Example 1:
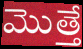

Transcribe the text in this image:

మొత్తే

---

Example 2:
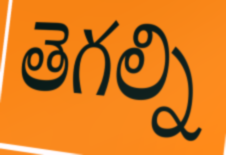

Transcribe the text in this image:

తెగల్ని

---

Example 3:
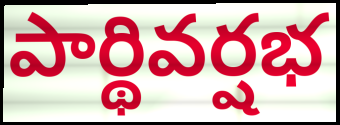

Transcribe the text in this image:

పార్థివర్షభ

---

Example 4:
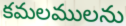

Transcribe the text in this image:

కమలములను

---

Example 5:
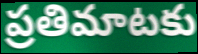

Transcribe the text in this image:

ప్రతిమాటకు